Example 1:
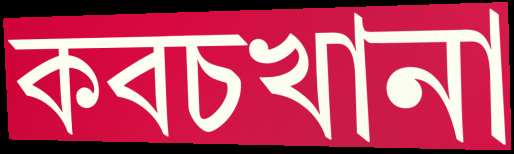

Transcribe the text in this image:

কবচখানা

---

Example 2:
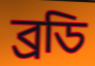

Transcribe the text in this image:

ব্রডি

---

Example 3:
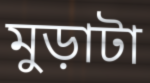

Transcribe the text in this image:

মুড়াটা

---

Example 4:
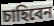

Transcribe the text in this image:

চাহিবেন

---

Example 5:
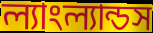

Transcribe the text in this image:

ল্যাংল্যান্ডস